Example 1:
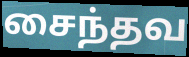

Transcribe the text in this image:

சைந்தவ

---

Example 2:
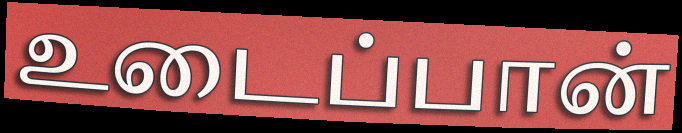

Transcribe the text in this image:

உடைப்பான்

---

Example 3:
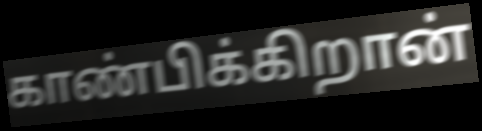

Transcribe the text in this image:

காண்பிக்கிறான்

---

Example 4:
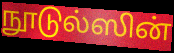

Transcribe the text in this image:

நூடுல்ஸின்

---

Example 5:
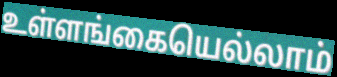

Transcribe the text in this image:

உள்ளங்கையெல்லாம்